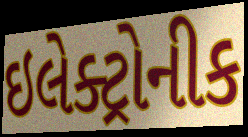
ઇલેક્ટ્રોનીક